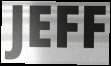
JEFF